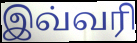
இவ்வரி